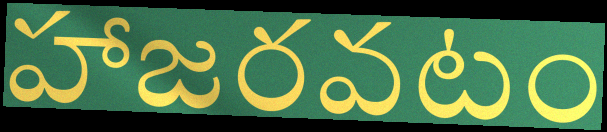
హాజరవటం